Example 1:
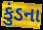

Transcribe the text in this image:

કુંડના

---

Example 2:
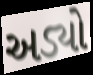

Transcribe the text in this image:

અડ્યો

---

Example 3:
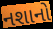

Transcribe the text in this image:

નશાનો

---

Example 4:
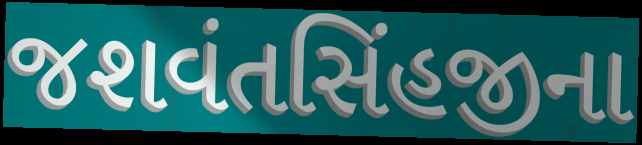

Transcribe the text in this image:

જશવંતસિંહજીના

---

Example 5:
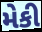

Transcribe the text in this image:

મેકી